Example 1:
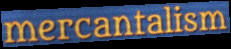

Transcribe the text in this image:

mercantalism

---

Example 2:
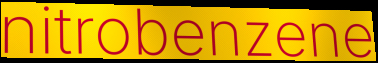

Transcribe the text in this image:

nitrobenzene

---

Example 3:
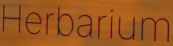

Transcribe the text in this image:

Herbarium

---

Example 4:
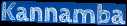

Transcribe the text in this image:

Kannamba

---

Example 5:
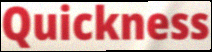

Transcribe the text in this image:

Quickness